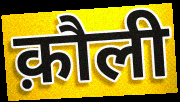
क़ौली